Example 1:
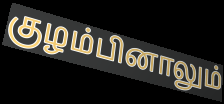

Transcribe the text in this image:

குழம்பினாலும்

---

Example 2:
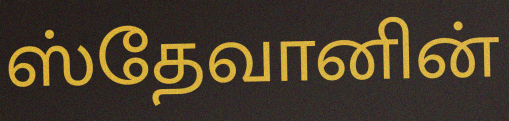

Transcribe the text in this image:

ஸ்தேவானின்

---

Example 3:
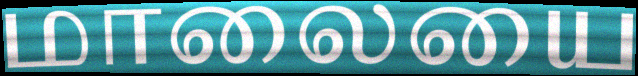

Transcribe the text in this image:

மாலையை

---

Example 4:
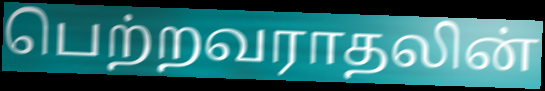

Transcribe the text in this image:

பெற்றவராதலின்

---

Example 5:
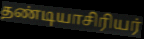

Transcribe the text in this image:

தண்டியாசிரியர்